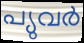
പ്യുവർ